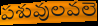
పశువులవలె